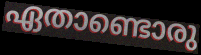
ഏതാണ്ടൊരു